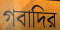
গবাদির